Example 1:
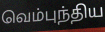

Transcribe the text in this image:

வெம்புந்திய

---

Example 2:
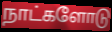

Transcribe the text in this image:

நாட்களோடு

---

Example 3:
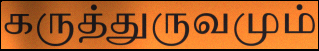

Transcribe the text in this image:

கருத்துருவமும்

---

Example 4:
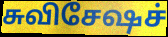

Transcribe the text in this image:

சுவிசேஷச்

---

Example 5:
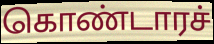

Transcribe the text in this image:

கொண்டாரச்